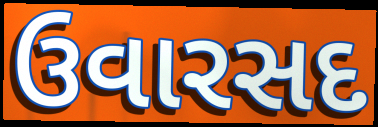
ઉવારસદ